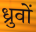
ध्रुवों